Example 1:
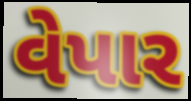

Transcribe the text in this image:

વેપાર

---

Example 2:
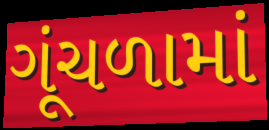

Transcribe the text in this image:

ગૂંચળામાં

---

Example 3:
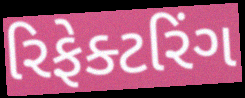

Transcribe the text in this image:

રિફેક્ટરિંગ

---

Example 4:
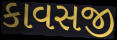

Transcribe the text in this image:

કાવસજી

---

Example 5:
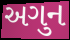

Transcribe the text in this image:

અગુન